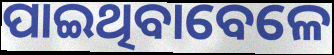
ପାଇଥିବାବେଳେ